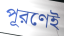
পূরণেই